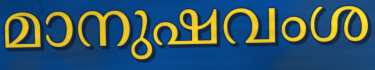
മാനുഷവംശ